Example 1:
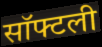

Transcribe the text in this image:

सॉफ्टली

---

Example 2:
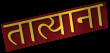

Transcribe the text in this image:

तात्याना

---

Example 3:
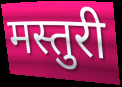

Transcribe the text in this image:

मस्तुरी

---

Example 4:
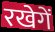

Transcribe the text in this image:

रखेगें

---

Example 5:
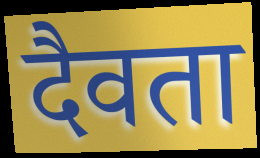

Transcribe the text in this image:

दैवता